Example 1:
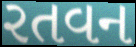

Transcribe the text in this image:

રતવન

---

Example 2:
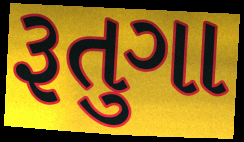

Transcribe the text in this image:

રૂતુગા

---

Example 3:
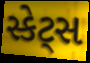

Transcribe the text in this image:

સ્કેટ્સ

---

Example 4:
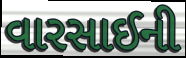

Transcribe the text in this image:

વારસાઈની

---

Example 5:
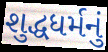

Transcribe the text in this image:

શુદ્ધધર્મનું